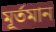
মূৰ্তমান